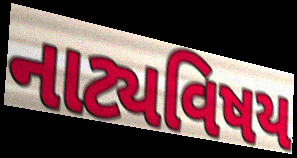
નાટ્યવિષય